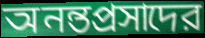
অনন্তপ্রসাদের